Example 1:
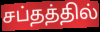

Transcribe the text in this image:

சப்தத்தில்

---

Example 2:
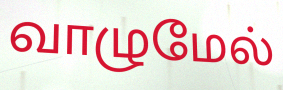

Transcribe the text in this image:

வாழுமேல்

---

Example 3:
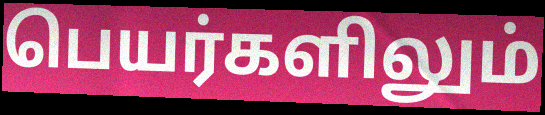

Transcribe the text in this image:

பெயர்களிலும்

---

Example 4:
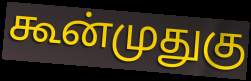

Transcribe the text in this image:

கூன்முதுகு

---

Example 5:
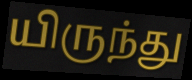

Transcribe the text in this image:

யிருந்து